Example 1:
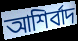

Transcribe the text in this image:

আশির্বাদ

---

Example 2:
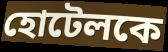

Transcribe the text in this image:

হোটেলকে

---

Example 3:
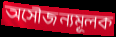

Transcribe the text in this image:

অসৌজন্যমূলক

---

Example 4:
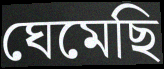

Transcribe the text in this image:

ঘেমেছি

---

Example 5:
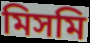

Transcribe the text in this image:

মিসমি